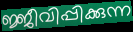
ജ്ജീവിപ്പിക്കുന്ന